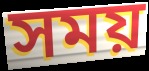
সময়